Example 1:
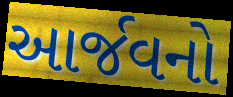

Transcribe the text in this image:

આર્જવનો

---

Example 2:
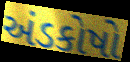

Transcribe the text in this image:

અંડકોષો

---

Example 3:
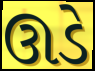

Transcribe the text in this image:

ઊડે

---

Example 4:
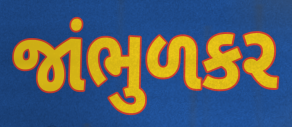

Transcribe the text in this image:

જાંભુળકર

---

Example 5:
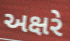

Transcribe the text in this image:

અક્ષરે